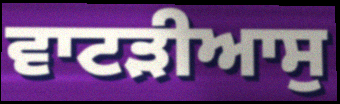
ਵਾਟੜੀਆਸੁ